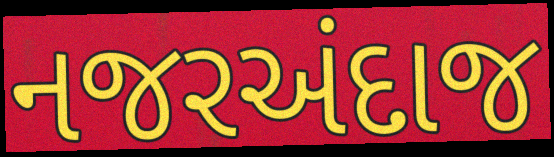
નજરઅંદાજ